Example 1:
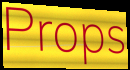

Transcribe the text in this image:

Props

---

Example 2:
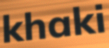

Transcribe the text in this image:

khaki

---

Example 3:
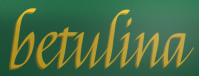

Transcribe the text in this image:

betulina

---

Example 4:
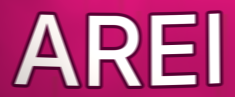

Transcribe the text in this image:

AREI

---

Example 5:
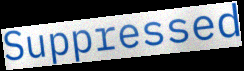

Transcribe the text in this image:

Suppressed